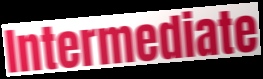
Intermediate